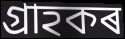
গ্ৰাহকৰ